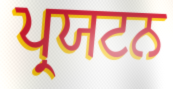
ਪ੍ਰਯਟਨ